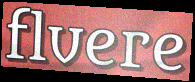
fluere